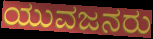
ಯುವಜನರು